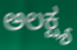
ಅಲಕ್ಷ್ಯ